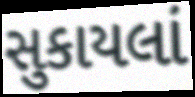
સુકાયલાં